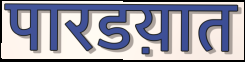
पारडय़ात